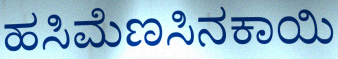
ಹಸಿಮೆಣಸಿನಕಾಯಿ